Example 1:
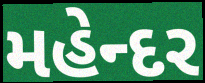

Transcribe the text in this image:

મહેન્દર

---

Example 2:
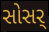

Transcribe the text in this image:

સોસર્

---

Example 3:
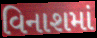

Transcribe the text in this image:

વિનાશમાં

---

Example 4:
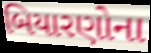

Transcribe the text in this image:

બિયારણોના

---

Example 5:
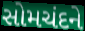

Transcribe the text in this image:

સોમચંદને